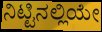
ನಿಟ್ಟಿನಲ್ಲಿಯೇ